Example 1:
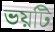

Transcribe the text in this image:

ভয়টি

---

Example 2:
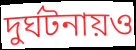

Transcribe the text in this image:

দুর্ঘটনায়ও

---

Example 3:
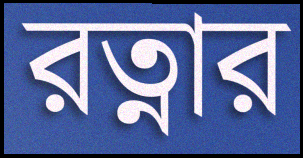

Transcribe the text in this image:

রত্নার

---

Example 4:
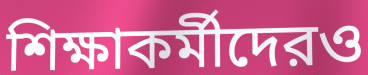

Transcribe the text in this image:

শিক্ষাকর্মীদেরও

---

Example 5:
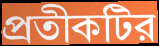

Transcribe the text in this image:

প্রতীকটির